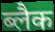
ब्‍लैक